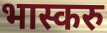
भास्करु